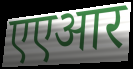
एएआर